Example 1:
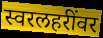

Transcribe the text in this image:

स्वरलहरींवर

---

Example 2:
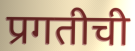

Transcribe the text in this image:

प्रगतीची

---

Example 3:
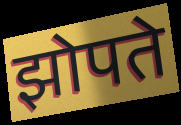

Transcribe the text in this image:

झोपते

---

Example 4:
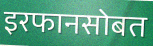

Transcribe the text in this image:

इरफानसोबत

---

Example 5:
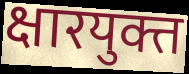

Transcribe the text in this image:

क्षारयुक्त